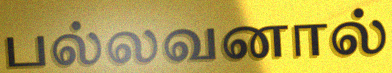
பல்லவனால்